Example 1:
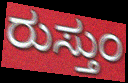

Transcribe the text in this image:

ರುಸ್ತುಂ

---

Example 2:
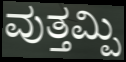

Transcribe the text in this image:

ವುತ್ತಮ್ಪಿ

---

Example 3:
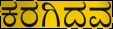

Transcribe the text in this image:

ಕರಗಿದವ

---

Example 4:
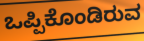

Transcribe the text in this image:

ಒಪ್ಪಿಕೊಂಡಿರುವ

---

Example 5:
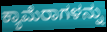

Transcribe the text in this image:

ಕ್ಯಾಮೆರಾಗಳನ್ನು